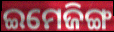
ଇମେଜିଙ୍ଗ